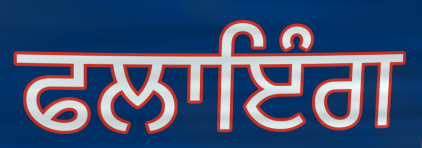
ਫਲਾਇੰਗ